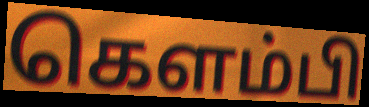
கெளம்பி